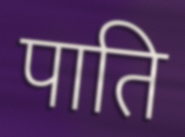
पाति